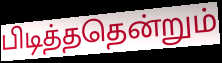
பிடித்ததென்றும்